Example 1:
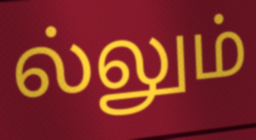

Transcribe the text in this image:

ல்லும்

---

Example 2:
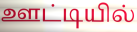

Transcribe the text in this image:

ஊட்டியில்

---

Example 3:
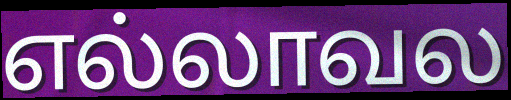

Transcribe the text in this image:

எல்லாவல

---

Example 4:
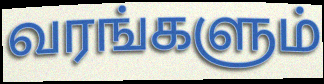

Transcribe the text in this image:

வரங்களும்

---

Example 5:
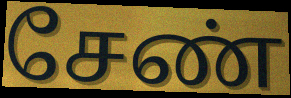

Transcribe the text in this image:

சேண்